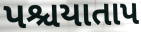
પશ્ચયાતાપ